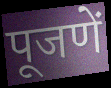
पूजणें